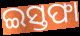
ଇସ୍ତଫା